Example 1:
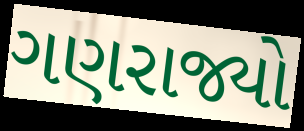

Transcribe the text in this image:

ગણરાજ્યો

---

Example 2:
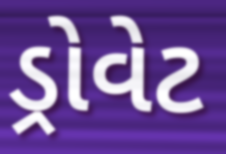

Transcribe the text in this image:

ડ્રોવેટ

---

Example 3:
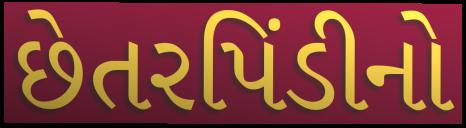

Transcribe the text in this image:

છેતરપિંડીનો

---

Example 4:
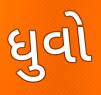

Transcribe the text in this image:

ધુવો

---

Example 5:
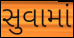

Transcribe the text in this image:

સુવામાં